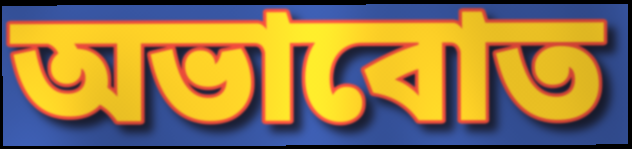
অভাবোত